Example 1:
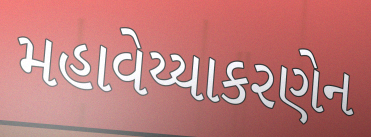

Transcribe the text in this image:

મહાવેય્યાકરણેન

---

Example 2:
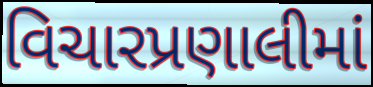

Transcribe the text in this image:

વિચારપ્રણાલીમાં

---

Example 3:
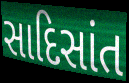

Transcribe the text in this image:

સાદિસાંત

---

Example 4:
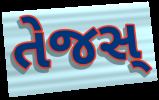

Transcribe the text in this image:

તેજસ્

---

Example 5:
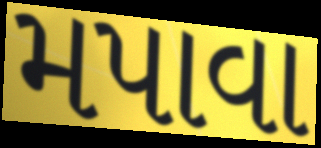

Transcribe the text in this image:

મપાવા